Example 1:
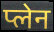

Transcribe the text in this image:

प्लेन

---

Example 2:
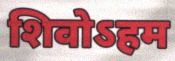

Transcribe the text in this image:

शिवोऽहम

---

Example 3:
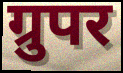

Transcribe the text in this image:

ग्रुपर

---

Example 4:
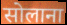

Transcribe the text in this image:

सोलाना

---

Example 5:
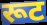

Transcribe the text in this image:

रूट